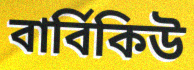
বাৰ্বিকিউ